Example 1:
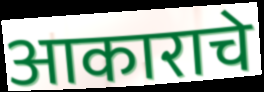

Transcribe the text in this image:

आकाराचे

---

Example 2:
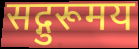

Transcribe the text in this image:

सद्गुरूमय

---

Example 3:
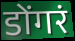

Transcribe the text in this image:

डोंगरं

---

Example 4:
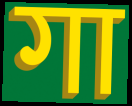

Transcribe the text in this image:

गा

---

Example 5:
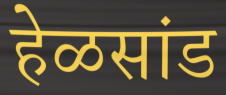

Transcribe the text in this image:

हेळसांड